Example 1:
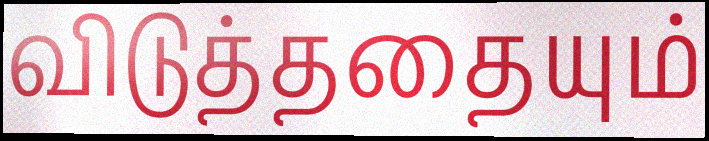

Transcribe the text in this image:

விடுத்ததையும்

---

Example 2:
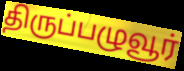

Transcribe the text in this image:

திருப்பழுவூர்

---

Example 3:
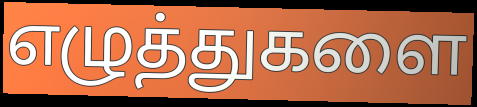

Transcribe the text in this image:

எழுத்துகளை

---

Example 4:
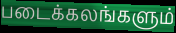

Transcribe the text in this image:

படைக்கலங்களும்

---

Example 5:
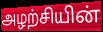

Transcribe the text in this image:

அழற்சியின்